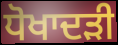
ਧੋਖਾਦੜੀ